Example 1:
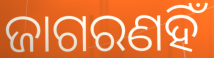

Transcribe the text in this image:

ଜାଗରଣହିଁ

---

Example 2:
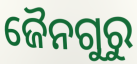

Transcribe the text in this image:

ଜୈନଗୁରୁ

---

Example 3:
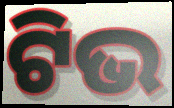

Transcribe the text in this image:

ଟିଭ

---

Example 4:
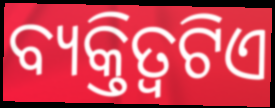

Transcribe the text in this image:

ବ୍ୟକ୍ତିତ୍ବଟିଏ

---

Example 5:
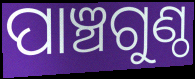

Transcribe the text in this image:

ପାଞ୍ଚଗୁଣ୍ଠ